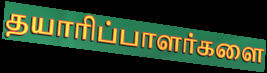
தயாரிப்பாளர்களை